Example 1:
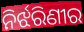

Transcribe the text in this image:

ନିର୍ଝରିଣୀର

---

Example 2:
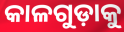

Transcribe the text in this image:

କାଳଗୁଡ଼ାକୁ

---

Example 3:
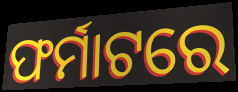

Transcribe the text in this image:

ଫର୍ମାଟରେ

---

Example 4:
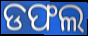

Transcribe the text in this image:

ଡଫଲ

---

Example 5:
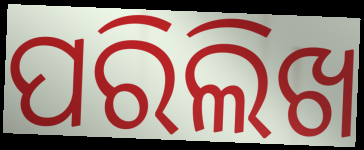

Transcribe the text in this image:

ପରିଲିଖ